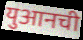
युआनची